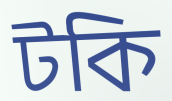
টকি